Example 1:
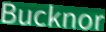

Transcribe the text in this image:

Bucknor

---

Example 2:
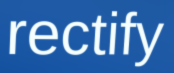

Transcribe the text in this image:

rectify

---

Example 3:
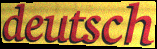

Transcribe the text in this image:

deutsch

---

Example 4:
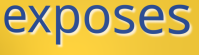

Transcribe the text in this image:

exposes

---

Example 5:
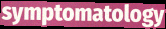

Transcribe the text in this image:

symptomatology